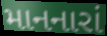
માનનારાં